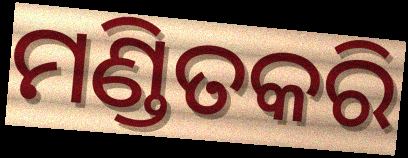
ମଣ୍ଡିତକରି